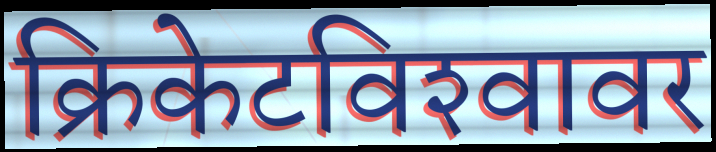
क्रिकेटविश्वावर